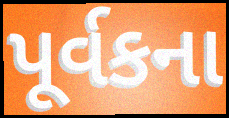
પૂર્વકના